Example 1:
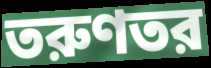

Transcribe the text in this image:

তরুণতর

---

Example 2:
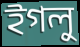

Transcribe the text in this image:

ইগলু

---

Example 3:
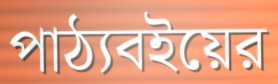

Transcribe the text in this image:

পাঠ্যবইয়ের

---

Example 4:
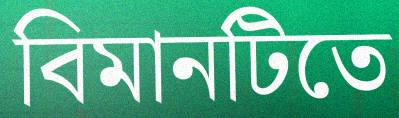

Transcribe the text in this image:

বিমানটিতে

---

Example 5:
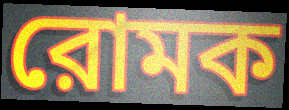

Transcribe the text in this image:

রোমক